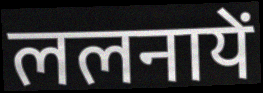
ललनायें